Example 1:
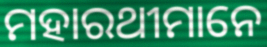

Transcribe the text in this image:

ମହାରଥୀମାନେ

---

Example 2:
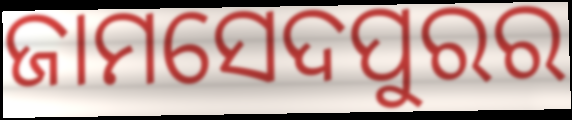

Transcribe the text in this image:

ଜାମସେଦପୁରର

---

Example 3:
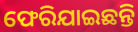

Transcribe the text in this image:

ଫେରିଯାଇଛନ୍ତି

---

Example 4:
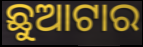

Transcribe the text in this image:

ଛୁଆଟାର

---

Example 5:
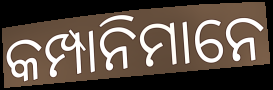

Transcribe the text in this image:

କମ୍ପାନିମାନେ